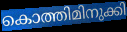
കൊത്തിമിനുക്കി